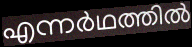
എന്നർഥത്തിൽ